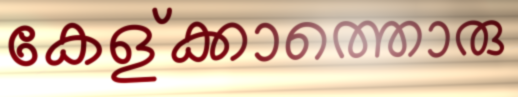
കേള്ക്കാത്തൊരു